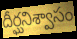
దీర్ఘనిశ్వాసం